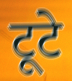
टूटे